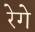
रेगे